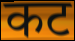
कट